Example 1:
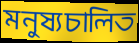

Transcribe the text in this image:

মনুষ্যচালিত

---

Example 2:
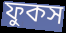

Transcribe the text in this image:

ফুকস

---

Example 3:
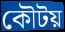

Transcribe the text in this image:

কৌটয়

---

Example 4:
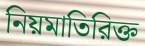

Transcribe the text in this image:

নিয়মাতিরিক্ত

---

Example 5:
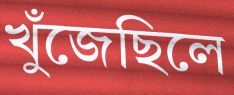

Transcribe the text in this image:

খুঁজেছিলে